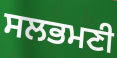
ਸਲਭਮਣੀ